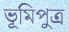
ভূমিপুত্ৰ